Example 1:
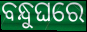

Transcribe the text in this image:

ବନ୍ଧୁଘରେ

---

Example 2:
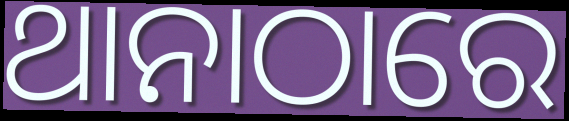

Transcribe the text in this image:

ଥାନାଠାରେ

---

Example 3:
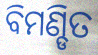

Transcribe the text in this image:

ବିମଣ୍ଡିତ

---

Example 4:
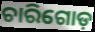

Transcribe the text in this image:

ଚାରିଗୋଡ଼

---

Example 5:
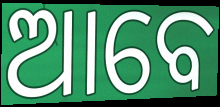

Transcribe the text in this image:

ଆବେ